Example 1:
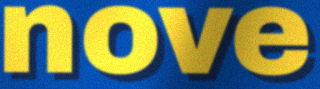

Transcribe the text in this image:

nove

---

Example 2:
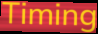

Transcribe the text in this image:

Timing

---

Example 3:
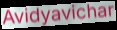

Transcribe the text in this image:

Avidyavichar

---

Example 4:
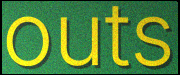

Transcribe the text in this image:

outs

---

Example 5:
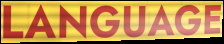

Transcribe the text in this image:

LANGUAGE